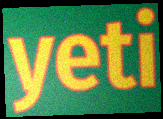
yeti